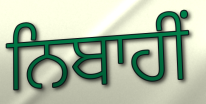
ਨਿਬਾਹੀਂ